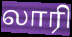
லாரி